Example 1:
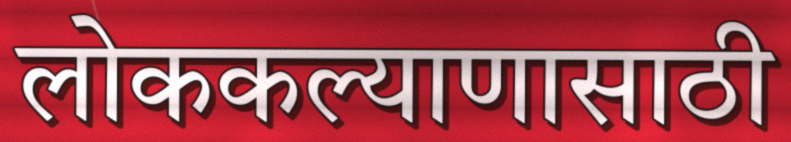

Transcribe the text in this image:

लोककल्याणासाठी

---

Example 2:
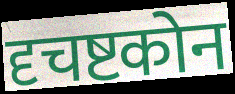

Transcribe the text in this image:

दृचष्टकोन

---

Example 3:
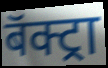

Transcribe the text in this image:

बॅक्ट्रा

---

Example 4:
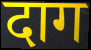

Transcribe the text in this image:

दाग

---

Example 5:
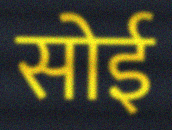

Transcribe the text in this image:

सोई